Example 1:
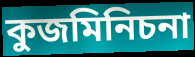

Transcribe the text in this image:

কুজমিনিচনা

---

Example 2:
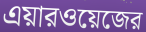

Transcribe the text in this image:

এয়ারওয়েজের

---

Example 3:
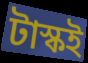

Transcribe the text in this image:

টাস্কই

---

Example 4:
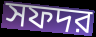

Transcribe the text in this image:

সফদর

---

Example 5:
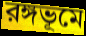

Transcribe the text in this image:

রঙ্গভূমে